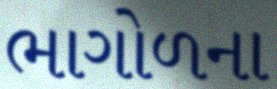
ભાગોળના